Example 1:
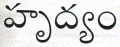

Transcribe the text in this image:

హృద్యం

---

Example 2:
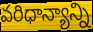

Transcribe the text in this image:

వరిధాన్యాన్ని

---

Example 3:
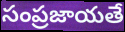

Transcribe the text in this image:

సంప్రజాయతే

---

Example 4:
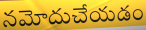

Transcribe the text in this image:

నమోదుచేయడం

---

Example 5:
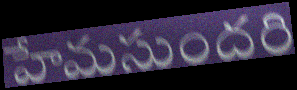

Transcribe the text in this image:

హేమసుందరి